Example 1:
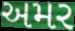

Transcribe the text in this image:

અમર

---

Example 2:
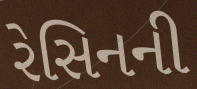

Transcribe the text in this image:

રેસિનની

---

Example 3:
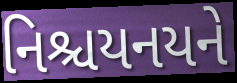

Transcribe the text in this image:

નિશ્ચયનયને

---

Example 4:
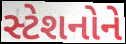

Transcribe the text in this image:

સ્ટેશનોને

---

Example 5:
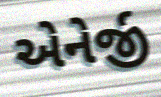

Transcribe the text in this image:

એનેર્જી